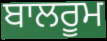
ਬਾਲਰੂਮ